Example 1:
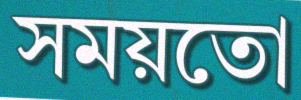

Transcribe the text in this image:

সময়তো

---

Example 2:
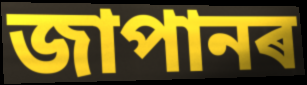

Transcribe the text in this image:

জাপানৰ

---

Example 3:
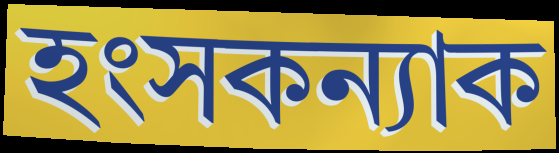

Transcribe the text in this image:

হংসকন্যাক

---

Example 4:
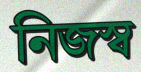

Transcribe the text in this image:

নিজস্ব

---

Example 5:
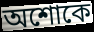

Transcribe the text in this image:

অশোকে